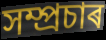
সম্প্ৰচাৰ